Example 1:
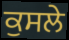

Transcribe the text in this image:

ਕੁਸਲੇ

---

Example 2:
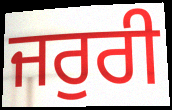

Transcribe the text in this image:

ਜਰੁਰੀ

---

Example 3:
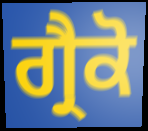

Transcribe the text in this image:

ਗ੍ਰੈਕੋ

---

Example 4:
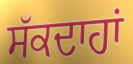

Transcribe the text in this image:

ਸੱਕਦਾਹਾਂ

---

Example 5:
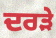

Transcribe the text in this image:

ਦਰੜੇ